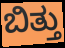
ಬಿತ್ತು